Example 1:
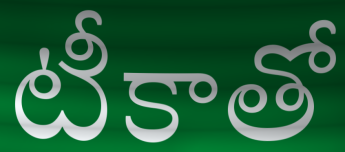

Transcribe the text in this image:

టీకాతో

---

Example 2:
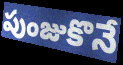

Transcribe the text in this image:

పుంజుకొనే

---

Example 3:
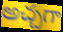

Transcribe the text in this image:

అచ్చగా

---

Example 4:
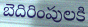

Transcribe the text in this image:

బెదిరింపులకి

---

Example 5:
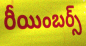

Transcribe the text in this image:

రీయింబర్స్